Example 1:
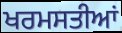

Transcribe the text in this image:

ਖਰਮਸਤੀਆਂ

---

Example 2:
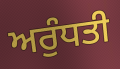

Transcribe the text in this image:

ਅਰੁੰਧਤੀ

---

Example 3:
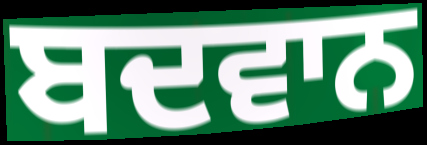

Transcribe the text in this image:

ਬਦਵਾਨ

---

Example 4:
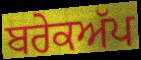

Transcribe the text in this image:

ਬਰੇਕਅੱਪ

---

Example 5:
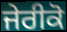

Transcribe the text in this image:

ਜੇਰੀਕੋ